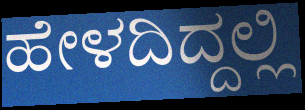
ಹೇಳದಿದ್ದಲ್ಲಿ